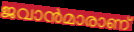
ജവാൻമാരാണ്